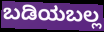
ಬಡಿಯಬಲ್ಲ